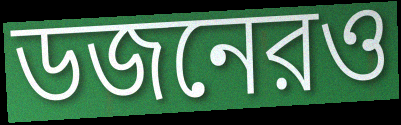
ডজনেরও